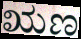
ಋಣ